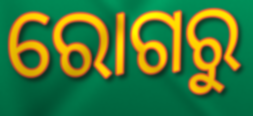
ରୋଗରୁ